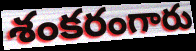
శంకరంగారు